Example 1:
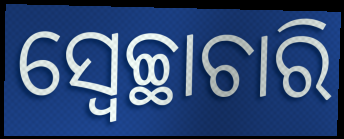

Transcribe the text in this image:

ସ୍ଵେଚ୍ଛାଚାରି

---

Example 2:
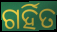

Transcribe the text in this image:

ଗର୍ହିତ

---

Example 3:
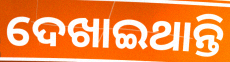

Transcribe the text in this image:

ଦେଖାଇଥାନ୍ତି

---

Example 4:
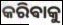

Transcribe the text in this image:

କରିଵାକୁ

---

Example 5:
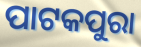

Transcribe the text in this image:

ପାଟକପୁରା